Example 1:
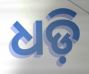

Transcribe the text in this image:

ଧଡ଼ି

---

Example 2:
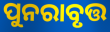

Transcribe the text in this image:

ପୁନରାବୃତ୍ତ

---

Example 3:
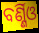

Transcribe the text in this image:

ବର୍ଣ୍ଣିଓ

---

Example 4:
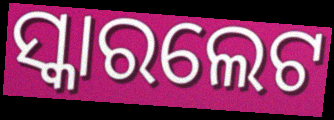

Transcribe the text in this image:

ସ୍କାରଲେଟ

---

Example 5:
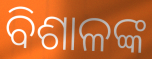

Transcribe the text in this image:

ବିଶାଳଙ୍କ